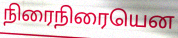
நிரைநிரையென